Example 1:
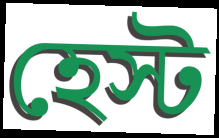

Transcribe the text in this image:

হেস্ট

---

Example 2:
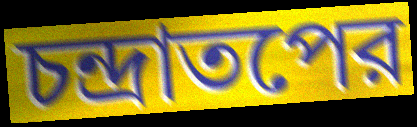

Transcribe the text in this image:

চন্দ্রাতপের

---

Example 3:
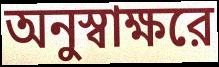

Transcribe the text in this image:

অনুস্বাক্ষরে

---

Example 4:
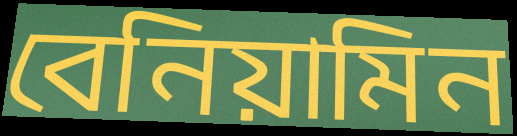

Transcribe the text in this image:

বেনিয়ামিন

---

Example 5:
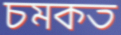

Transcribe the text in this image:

চমকত